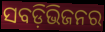
ସବଡ଼ିଭିଜନର